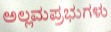
ಅಲ್ಲಮಪ್ರಭುಗಳು